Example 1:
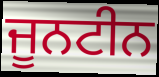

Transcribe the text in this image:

ਜੂਨਟੀਨ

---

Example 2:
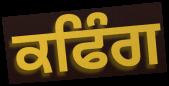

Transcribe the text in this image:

ਕਫਿੰਗ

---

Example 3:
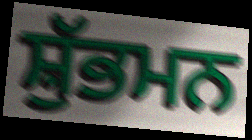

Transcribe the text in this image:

ਸ਼ੁੱਭਮਨ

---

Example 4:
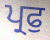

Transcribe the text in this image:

ਪ੍ਰਫੁ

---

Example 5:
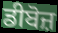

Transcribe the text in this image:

ਡੀਬੋਜ਼